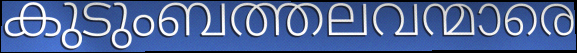
കുടുംബത്തലവന്മാരെ